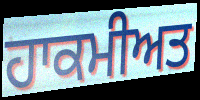
ਹਾਕਮੀਅਤ